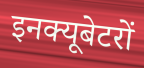
इनक्यूबेटरों